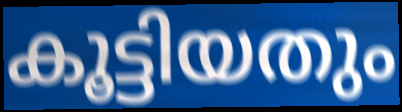
കൂട്ടിയതും